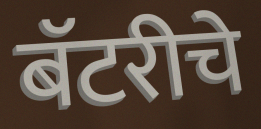
बॅटरीचे